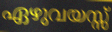
ഏഴുവയസ്സ്